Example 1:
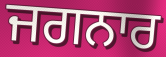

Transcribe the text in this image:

ਜਗਨਾਰ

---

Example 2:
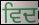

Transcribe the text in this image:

ਵਿਦ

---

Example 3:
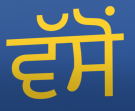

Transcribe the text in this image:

ਵੱਸੋਂ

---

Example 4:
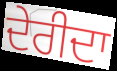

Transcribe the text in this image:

ਦੇਰੀਦਾ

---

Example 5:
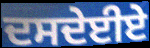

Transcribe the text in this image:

ਦਸਦੇਈਏ